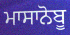
ਮਾਸਾਨੋਬੂ